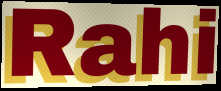
Rahi